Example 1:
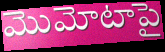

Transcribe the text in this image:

మొమోటాపై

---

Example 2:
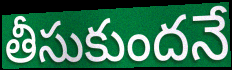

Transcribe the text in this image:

తీసుకుందనే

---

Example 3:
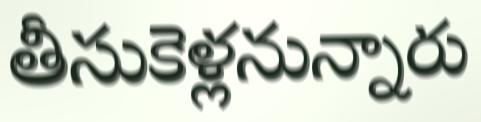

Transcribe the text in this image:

తీసుకెళ్లనున్నారు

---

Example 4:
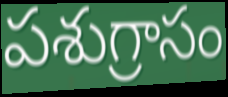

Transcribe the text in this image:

పశుగ్రాసం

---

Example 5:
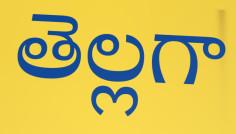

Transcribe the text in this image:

తెల్లగా